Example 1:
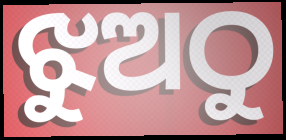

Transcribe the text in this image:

ଝୁଅଠୁ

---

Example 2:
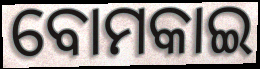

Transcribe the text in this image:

ବୋମକାଇ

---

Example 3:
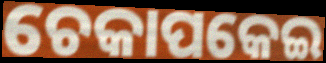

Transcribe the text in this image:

ଚେକାପକେଇ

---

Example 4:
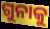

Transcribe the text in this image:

ଗୁନାକୁ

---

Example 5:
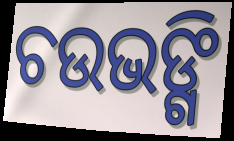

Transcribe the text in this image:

ଚଉଭଙ୍ଗି